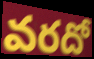
వరదో